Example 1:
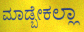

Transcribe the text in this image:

ಮಾಡ್ಬೇಕಲ್ಲಾ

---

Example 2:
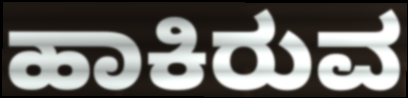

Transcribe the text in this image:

ಹಾಕಿರುವ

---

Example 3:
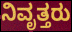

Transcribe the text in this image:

ನಿವೃತ್ತರು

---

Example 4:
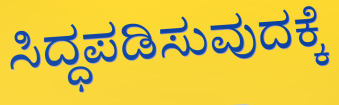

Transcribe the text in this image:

ಸಿದ್ಧಪಡಿಸುವುದಕ್ಕೆ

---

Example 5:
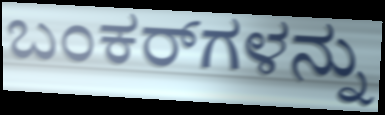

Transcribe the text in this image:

ಬಂಕರ್‌ಗಳನ್ನು